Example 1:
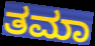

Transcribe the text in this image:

ತಮಾ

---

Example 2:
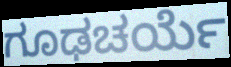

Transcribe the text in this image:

ಗೂಢಚರ್ಯೆ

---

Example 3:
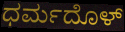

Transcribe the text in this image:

ಧರ್ಮದೊಳ್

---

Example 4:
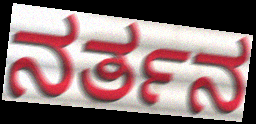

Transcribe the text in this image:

ನರ್ತನ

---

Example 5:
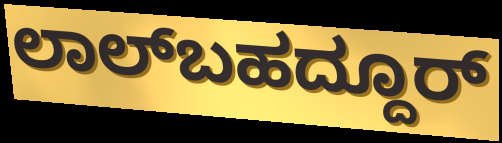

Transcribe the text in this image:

ಲಾಲ್‌ಬಹದ್ದೂರ್